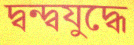
দ্বন্দ্বযুদ্ধে